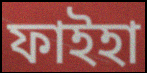
ফাইহা